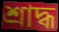
শ্রাদ্ধ